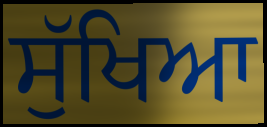
ਸੁੱਖਿਆ